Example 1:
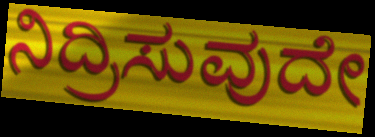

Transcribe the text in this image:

ನಿದ್ರಿಸುವುದೇ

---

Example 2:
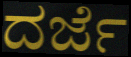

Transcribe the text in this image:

ದರ್ಜೆ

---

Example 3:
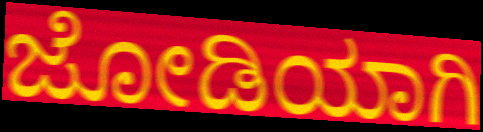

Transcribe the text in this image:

ಜೋಡಿಯಾಗಿ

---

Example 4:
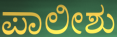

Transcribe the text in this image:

ಪಾಲೀಶು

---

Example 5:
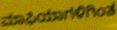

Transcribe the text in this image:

ಮಾಫಿಯಾಗಳಿಗಿಂತ